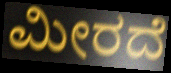
ಮೀರದೆ